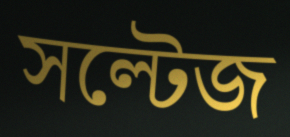
সল্টেজ